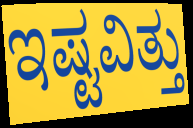
ಇಷ್ಟವಿತ್ತು